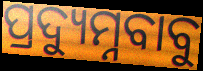
ପ୍ରଦ୍ୟୁମ୍ନବାବୁ